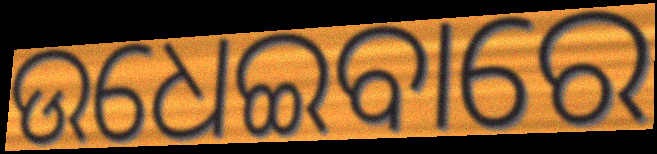
ଉଧେଇବାରେ